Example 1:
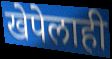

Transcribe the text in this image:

खेपेलाही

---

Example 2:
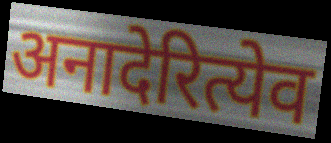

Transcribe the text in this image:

अनादेरित्येव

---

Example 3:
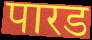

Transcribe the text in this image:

पारड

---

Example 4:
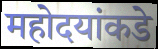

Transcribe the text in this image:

महोदयांकडे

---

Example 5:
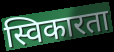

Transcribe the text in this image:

स्विकारता